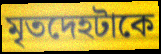
মৃতদেহটাকে